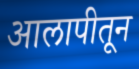
आलापीतून